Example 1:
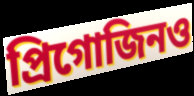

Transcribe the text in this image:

প্রিগোজিনও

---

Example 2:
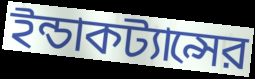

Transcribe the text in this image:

ইন্ডাকট্যান্সের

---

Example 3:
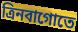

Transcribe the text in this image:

ত্রিনবাগোতে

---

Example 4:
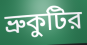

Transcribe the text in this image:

ভ্রুকুটির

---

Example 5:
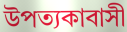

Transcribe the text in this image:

উপত্যকাবাসী